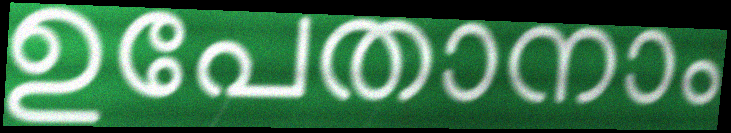
ഉപേതാനാം